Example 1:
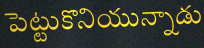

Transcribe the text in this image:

పెట్టుకొనియున్నాడు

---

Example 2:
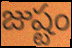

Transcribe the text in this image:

జుష్టం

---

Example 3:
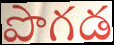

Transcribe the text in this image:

పొగడ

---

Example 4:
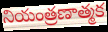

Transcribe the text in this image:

నియంత్రణాత్మక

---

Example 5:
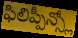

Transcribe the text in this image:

ఫిలిప్పీన్స్లో